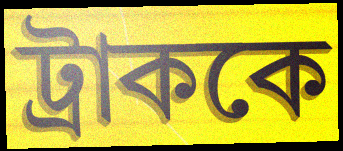
ট্রাককে